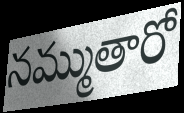
నమ్ముతారో